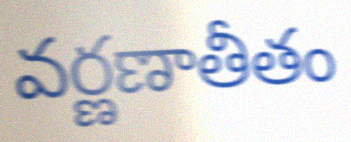
వర్ణణాతీతం